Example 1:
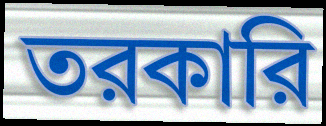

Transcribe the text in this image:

তরকারি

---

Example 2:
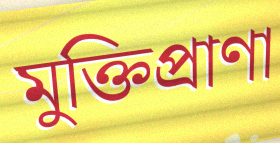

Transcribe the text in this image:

মুক্তিপ্রাণা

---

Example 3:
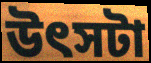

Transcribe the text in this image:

উৎসটা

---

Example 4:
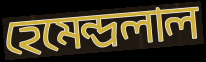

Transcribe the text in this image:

হেমেন্দ্রলাল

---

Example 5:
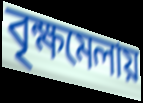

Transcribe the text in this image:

বৃক্ষমেলায়